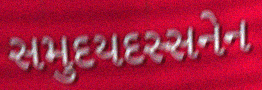
સમુદયદસ્સનેન